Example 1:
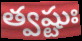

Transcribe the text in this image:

త్వష్టుః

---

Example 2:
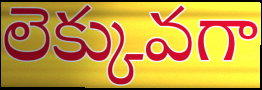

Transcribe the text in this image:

లెక్కువగా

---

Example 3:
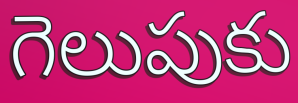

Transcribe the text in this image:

గెలుపుకు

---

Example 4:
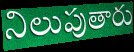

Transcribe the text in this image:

నిలుపుతారు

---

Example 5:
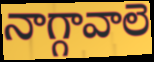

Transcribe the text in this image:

నాగ్గావాలె